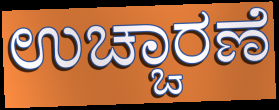
ಉಚ್ಚಾರಣೆ